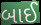
બાઈ